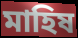
মাহিষ